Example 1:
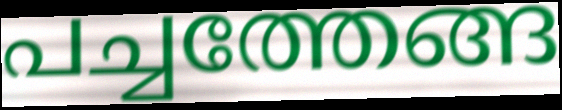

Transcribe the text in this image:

പച്ചത്തേങ്ങ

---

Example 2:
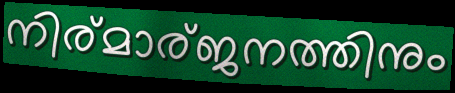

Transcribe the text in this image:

നിര്മാര്ജനത്തിനും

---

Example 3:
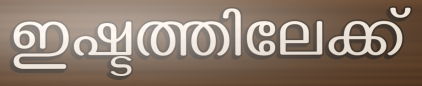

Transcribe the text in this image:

ഇഷ്ടത്തിലേക്ക്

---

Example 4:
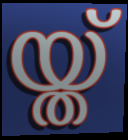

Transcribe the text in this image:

യ്ത്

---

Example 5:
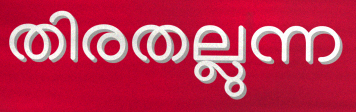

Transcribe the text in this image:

തിരതല്ലുന്ന